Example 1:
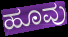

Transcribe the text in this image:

ಹೂವು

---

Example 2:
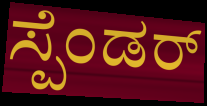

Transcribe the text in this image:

ಸ್ಪೆಂಡರ್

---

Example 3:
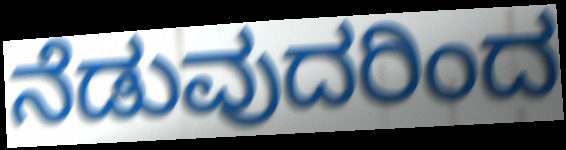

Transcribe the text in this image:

ನೆಡುವುದರಿಂದ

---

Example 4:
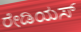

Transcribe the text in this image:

ರೇಡಿಯಸ್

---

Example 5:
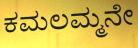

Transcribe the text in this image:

ಕಮಲಮ್ಮನೇ